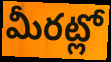
మీరట్లో